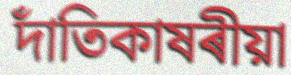
দাঁতিকাষৰীয়া